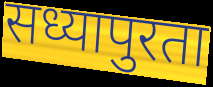
सध्यापुरता